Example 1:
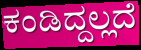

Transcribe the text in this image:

ಕಂಡಿದ್ದಲ್ಲದೆ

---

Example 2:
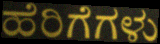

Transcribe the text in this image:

ಹೆರಿಗೆಗಳು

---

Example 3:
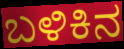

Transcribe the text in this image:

ಬಳಿಕಿನ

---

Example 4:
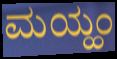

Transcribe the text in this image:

ಮಯ್ಹಂ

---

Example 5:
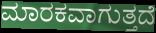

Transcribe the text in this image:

ಮಾರಕವಾಗುತ್ತದೆ